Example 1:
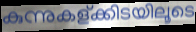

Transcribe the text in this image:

കുന്നുകള്ക്കിടയിലൂടെ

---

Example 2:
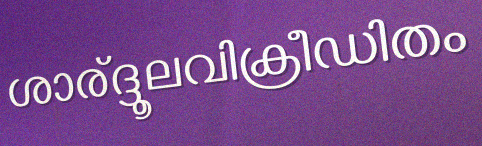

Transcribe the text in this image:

ശാര്ദ്ദൂലവിക്രീഡിതം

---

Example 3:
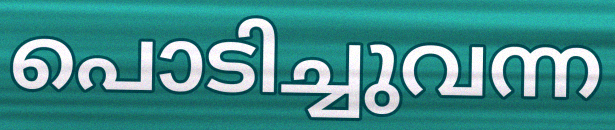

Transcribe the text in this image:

പൊടിച്ചുവന്ന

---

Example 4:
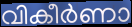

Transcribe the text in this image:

വികീർണാ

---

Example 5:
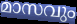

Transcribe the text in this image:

മാസവും